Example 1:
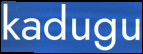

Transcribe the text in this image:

kadugu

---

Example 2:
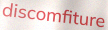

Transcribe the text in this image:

discomfiture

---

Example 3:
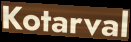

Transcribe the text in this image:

Kotarval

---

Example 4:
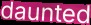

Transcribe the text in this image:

daunted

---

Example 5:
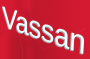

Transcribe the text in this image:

Vassan